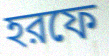
হরফে